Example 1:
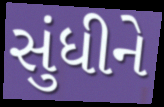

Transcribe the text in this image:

સુંધીને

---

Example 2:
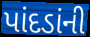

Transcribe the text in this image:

પાંદડાંની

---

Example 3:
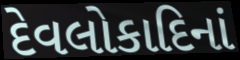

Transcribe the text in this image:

દેવલોકાદિનાં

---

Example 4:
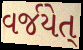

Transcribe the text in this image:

વર્જયેત્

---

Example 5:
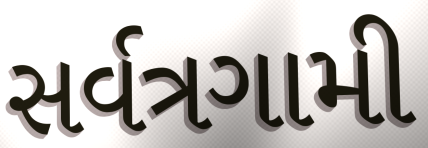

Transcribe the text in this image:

સર્વત્રગામી